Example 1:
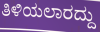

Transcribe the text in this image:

ತಿಳಿಯಲಾರದ್ದು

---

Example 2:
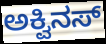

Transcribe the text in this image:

ಅಕ್ವಿನಸ್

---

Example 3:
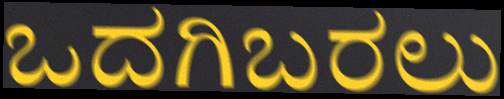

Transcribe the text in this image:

ಒದಗಿಬರಲು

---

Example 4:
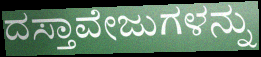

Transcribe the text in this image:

ದಸ್ತಾವೇಜುಗಳನ್ನು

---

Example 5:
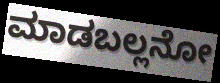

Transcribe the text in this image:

ಮಾಡಬಲ್ಲನೋ